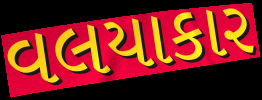
વલયાકાર